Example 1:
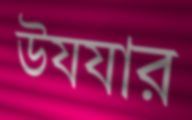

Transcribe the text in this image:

উযযার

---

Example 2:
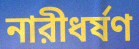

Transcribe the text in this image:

নারীধর্ষণ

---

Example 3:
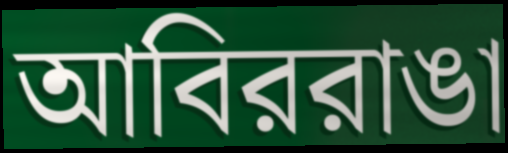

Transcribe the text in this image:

আবিররাঙা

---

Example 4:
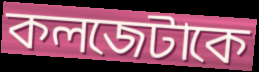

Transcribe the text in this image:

কলজেটাকে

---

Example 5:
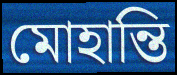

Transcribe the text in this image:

মোহান্তি